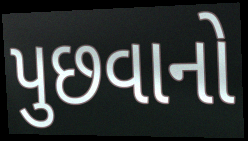
પુછવાનો